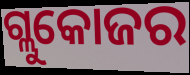
ଗ୍ଲୁକୋଜର